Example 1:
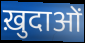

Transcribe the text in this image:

ख़ुदाओं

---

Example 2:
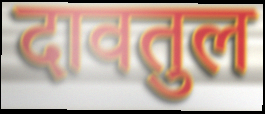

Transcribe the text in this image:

दावतुल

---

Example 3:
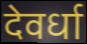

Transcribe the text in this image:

देवर्धा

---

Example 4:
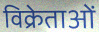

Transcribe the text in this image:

विक्रेताओं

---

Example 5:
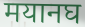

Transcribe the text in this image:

मयानघ